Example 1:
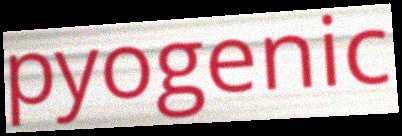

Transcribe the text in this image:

pyogenic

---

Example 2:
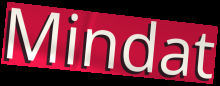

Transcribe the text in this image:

Mindat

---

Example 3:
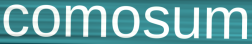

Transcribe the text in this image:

comosum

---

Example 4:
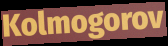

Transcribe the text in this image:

Kolmogorov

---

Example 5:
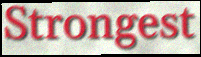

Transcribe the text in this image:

Strongest